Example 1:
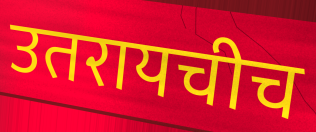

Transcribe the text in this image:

उतरायचीच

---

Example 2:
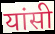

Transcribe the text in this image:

यांसी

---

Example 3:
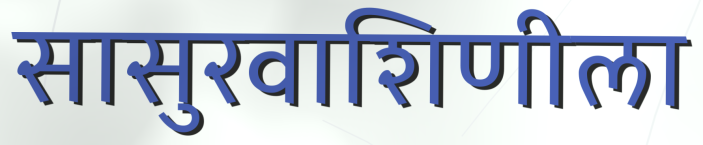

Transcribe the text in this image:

सासुरवाशिणीला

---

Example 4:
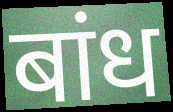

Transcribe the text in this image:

बांध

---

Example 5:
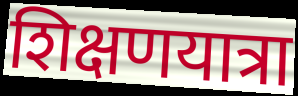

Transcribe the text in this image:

शिक्षणयात्रा